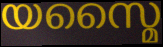
യസ്മൈ